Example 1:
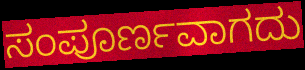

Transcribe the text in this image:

ಸಂಪೂರ್ಣವಾಗದು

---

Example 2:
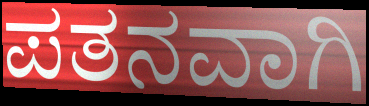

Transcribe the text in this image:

ಪತನವಾಗಿ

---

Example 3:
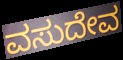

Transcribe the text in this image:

ವಸುದೇವ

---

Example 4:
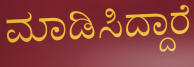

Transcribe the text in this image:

ಮಾಡಿಸಿದ್ದಾರೆ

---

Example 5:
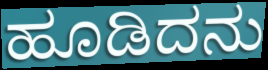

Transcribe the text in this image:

ಹೂಡಿದನು